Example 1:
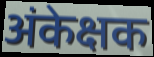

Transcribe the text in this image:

अंकेक्षक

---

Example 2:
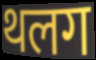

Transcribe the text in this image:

थलग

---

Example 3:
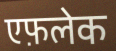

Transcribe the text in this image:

एफ़लेक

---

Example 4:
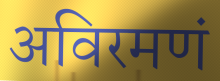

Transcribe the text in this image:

अविरमणं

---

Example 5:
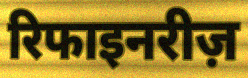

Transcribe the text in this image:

रिफाइनरीज़